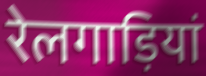
रेलगाड़ियां